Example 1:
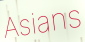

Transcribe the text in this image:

Asians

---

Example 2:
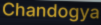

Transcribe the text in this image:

Chandogya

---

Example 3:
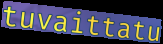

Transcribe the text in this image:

tuvaittatu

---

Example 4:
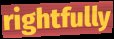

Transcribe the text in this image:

rightfully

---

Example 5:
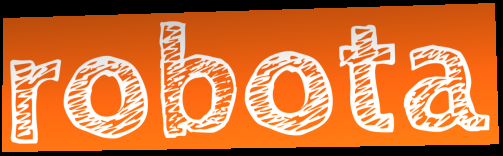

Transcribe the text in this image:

robota